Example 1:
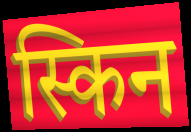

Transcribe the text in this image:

स्किन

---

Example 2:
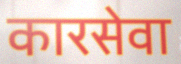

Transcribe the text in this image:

कारसेवा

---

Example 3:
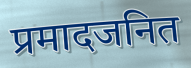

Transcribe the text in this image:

प्रमादजनित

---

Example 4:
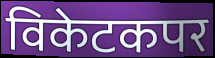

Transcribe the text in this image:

विकेटकपर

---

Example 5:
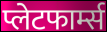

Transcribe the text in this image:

प्लेटफार्म्स